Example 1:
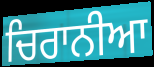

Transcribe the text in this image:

ਚਿਰਾਨੀਆ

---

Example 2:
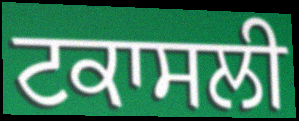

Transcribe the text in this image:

ਟਕਾਸਲੀ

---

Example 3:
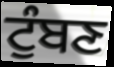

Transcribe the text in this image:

ਟੁੰਬਣ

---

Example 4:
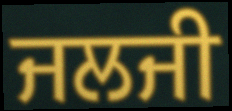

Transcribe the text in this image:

ਜਲਜੀ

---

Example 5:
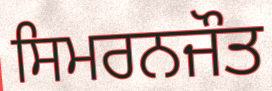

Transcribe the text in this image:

ਸਿਮਰਨਜੌਤ